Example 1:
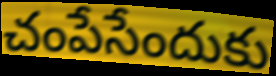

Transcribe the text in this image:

చంపేసేందుకు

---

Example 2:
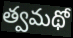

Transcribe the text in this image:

త్వమథో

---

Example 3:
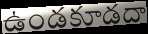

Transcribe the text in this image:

ఉండకూడదా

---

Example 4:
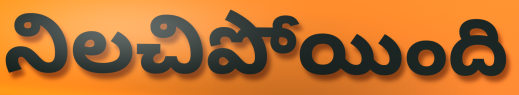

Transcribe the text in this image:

నిలచిపోయింది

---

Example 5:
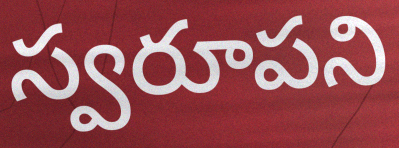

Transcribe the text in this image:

స్వరూపని